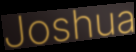
Joshua